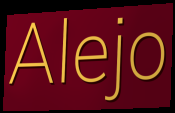
Alejo